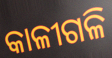
କାଳୀଗଳି